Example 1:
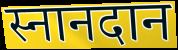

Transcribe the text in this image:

स्नानदान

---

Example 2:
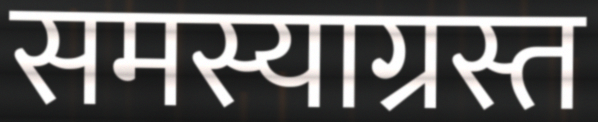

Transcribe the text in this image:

समस्याग्रस्त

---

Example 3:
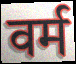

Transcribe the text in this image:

वर्म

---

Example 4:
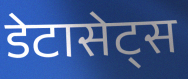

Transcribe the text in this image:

डेटासेट्स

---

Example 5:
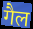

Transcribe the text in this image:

गैल